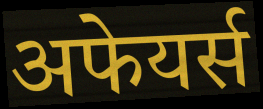
अफेयर्स